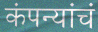
कंपन्यांचं